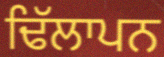
ਢਿੱਲਾਪਨ